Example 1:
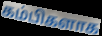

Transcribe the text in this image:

கம்பிகளாக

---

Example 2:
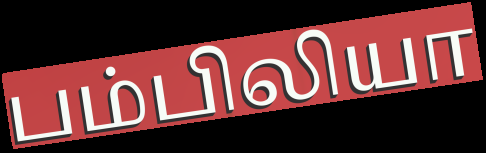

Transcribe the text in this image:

பம்பிலியா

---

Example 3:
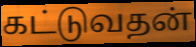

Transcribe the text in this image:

கட்டுவதன்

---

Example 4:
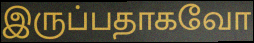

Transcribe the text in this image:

இருப்பதாகவோ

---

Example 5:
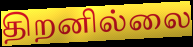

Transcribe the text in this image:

திறனில்லை